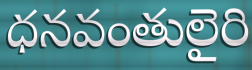
ధనవంతులైరి